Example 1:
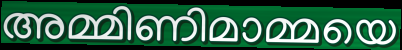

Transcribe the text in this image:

അമ്മിണിമാമ്മയെ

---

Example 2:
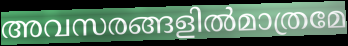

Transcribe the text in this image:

അവസരങ്ങളിൽമാത്രമേ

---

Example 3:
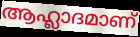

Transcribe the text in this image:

ആഹ്ലാദമാണ്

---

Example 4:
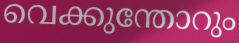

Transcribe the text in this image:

വെക്കുന്തോറും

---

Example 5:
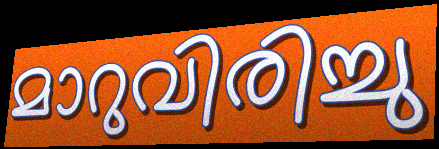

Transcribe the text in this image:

മാറുവിരിച്ചു